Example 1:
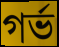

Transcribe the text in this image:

গর্ভ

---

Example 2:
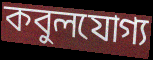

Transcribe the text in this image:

কবুলযোগ্য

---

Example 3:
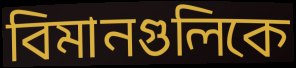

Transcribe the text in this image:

বিমানগুলিকে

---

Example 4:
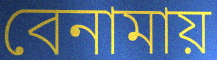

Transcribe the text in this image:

বেনামায়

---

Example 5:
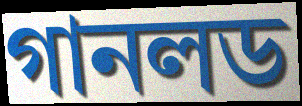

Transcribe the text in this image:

গানলড